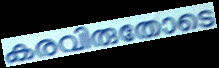
കരവിരുതോടെ